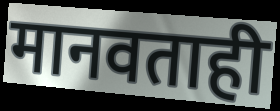
मानवताही